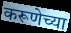
करूणेच्या